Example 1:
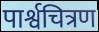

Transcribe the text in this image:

पार्श्वचित्रण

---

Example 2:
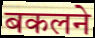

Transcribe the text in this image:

बकलने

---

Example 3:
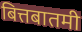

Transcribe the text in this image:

बित्तबातमी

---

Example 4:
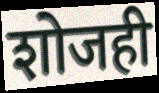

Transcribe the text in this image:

शोजही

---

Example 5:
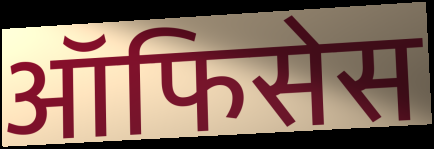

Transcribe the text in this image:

ऑफिसेस